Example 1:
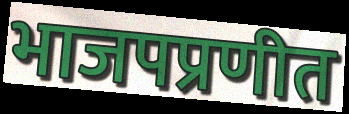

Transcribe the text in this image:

भाजपप्रणीत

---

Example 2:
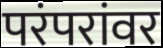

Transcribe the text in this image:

परंपरांवर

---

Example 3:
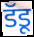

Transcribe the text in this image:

डॅडू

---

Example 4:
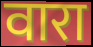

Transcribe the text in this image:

वारा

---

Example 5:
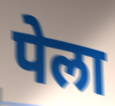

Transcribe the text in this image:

पेला